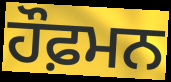
ਹੌਫ਼ਮਨ